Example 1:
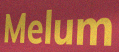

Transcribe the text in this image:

Melum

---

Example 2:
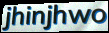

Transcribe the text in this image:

jhinjhwo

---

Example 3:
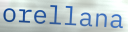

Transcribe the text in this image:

orellana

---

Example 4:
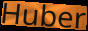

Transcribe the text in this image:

Huber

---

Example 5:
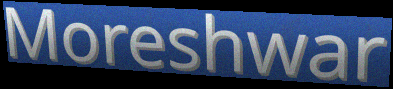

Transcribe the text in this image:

Moreshwar